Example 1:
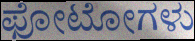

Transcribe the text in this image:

ಫೋಟೋಗಳು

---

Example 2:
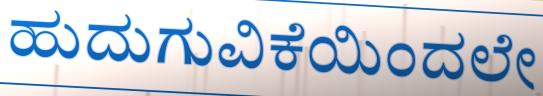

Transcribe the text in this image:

ಹುದುಗುವಿಕೆಯಿಂದಲೇ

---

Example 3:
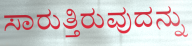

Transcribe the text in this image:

ಸಾರುತ್ತಿರುವುದನ್ನು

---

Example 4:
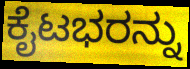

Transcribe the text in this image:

ಕೈಟಭರನ್ನು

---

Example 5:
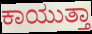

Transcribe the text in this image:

ಕಾಯುತ್ತಾ